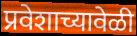
प्रवेशाच्यावेळी